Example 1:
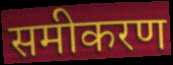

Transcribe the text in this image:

समीकरण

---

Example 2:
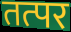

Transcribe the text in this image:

तत्‍पर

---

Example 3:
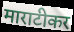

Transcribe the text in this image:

माराटीकर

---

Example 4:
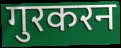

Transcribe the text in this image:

गुरकरन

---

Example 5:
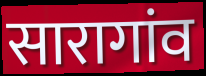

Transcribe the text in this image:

सारागांव